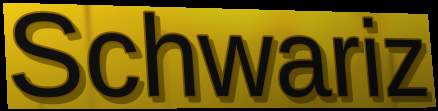
Schwariz